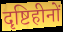
दृष्टिहीनों